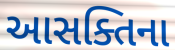
આસક્તિના